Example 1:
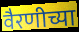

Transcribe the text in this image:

वैरणीच्या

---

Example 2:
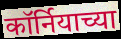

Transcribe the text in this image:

कॉर्नियाच्या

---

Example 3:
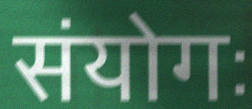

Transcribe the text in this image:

संयोगः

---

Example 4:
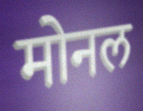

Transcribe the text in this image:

मोनल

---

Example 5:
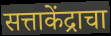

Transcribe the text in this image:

सत्ताकेंद्राचा